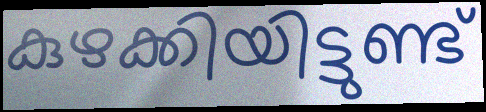
കുഴക്കിയിട്ടുണ്ട്